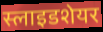
स्लाइडशेयर